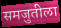
समजुतीला